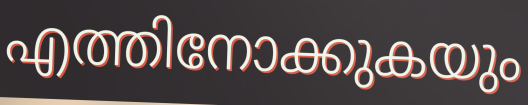
എത്തിനോക്കുകയും